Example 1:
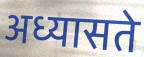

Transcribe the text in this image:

अध्यासते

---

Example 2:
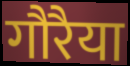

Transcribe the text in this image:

गौरैया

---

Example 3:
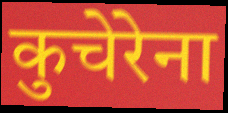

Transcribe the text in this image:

कुचेरेना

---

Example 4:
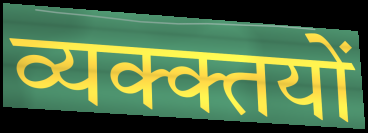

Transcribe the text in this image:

व्यक्क्तयों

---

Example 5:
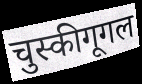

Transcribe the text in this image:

चुस्कीगूगल